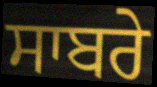
ਸਾਬਰੇ